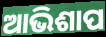
ଆଭିଶାପ